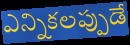
ఎన్నికలప్పుడే